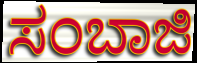
ಸಂಬಾಜಿ